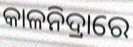
କାଳନିଦ୍ରାରେ